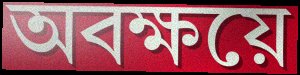
অবক্ষয়ে